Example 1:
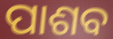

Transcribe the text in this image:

ପାଶବ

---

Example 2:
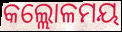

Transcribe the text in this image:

କଲ୍ଲୋଳମୟ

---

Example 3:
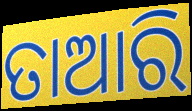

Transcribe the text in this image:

ତାଆରି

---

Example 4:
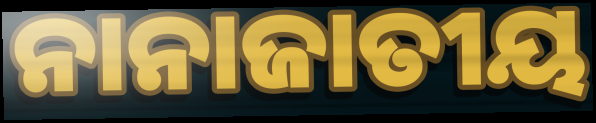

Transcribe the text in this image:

ନାନାଜାତୀୟ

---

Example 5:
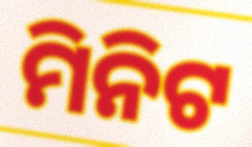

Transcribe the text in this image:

ମିନିଟ